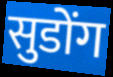
सुडोंग